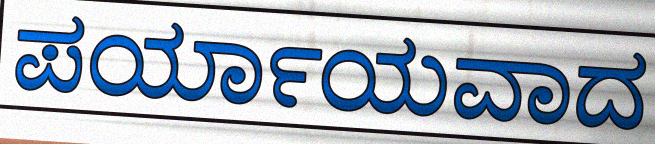
ಪರ್ಯಾಯವಾದ